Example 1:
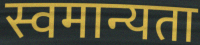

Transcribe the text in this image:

स्वमान्यता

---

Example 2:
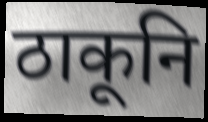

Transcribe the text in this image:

ठाकूनि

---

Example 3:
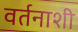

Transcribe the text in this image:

वर्तनाशी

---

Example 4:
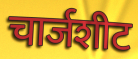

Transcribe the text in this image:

चार्जशीट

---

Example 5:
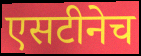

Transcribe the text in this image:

एसटीनेच